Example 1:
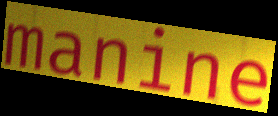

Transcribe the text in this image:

manine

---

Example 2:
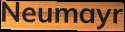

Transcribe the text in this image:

Neumayr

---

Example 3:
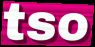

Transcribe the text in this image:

tso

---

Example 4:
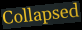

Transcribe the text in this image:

Collapsed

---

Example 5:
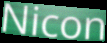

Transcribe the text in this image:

Nicon